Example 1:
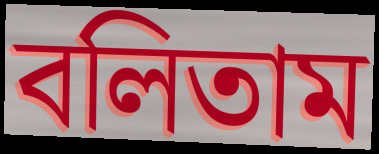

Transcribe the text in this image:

বলিতাম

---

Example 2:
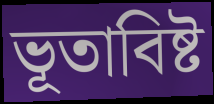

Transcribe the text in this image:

ভূতাবিষ্ট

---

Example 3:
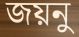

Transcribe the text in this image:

জয়নু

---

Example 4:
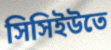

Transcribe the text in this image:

সিসিইউতে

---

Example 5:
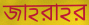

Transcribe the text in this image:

জাহরাহর